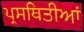
ਪ੍ਰਸਥਿਤੀਆਂ